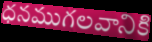
ధనముగలవానికి